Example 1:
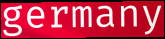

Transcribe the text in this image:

germany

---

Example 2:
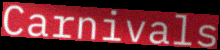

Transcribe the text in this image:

Carnivals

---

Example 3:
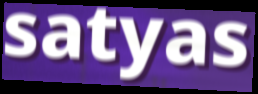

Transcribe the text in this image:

satyas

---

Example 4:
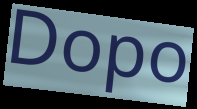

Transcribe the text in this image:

Dopo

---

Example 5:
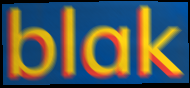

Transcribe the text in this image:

blak